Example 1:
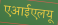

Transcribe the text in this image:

एआईएलयू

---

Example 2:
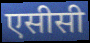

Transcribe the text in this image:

एसीसी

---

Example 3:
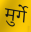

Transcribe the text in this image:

मुर्गे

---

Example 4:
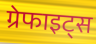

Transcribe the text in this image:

ग्रेफाइट्स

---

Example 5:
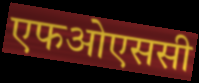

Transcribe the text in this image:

एफओएससी